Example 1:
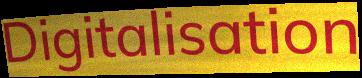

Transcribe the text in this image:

Digitalisation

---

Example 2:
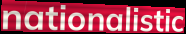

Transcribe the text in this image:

nationalistic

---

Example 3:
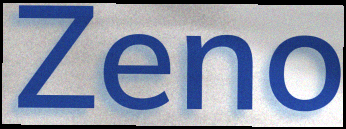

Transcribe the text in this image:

Zeno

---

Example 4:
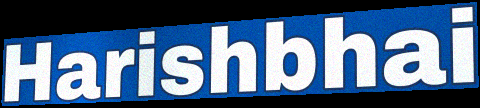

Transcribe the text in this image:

Harishbhai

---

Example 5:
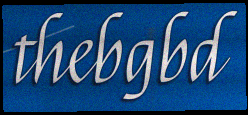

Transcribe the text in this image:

thebgbd